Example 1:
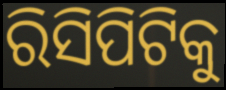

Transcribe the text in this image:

ରିସିପିଟିକୁ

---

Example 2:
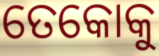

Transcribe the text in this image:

ତେକୋକୁ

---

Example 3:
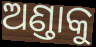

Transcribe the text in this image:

ଅଣ୍ଡାକୁ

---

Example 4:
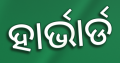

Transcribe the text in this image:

ହାର୍ଭାର୍ଡ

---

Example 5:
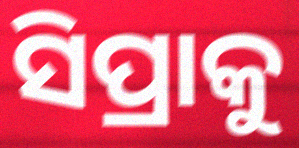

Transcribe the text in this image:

ସିପ୍ରାକୁ